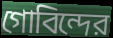
গোবিন্দের